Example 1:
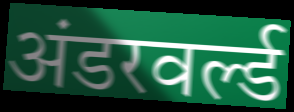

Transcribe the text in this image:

अंडरवर्ल्ड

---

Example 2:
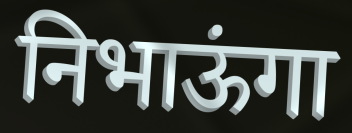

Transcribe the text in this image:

निभाऊंगा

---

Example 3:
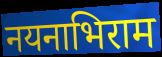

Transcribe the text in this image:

नयनाभिराम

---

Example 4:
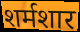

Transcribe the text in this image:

शर्मशार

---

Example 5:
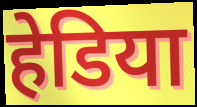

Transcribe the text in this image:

हेडिया